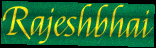
Rajeshbhai